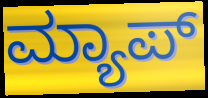
ಮ್ಯಾಪ್